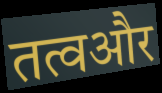
तत्वऔर